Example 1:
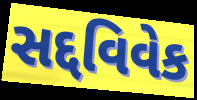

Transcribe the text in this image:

સદ્દવિવેક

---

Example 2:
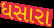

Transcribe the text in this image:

ધસારા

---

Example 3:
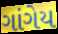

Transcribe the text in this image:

ગાંગેય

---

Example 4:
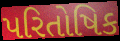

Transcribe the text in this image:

પરિતોષિક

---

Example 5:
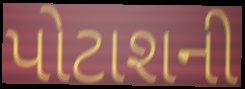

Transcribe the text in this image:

પોટાશની